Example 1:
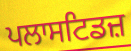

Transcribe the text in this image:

ਪਲਾਸਟਿਡਜ਼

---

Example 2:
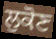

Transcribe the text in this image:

ਲੁਕੋਣ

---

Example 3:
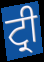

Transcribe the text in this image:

ਟ੍ਰੀ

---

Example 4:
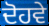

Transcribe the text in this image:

ਦੋਹਵੇ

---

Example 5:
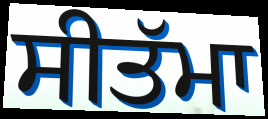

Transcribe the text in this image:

ਸੀਤੱਮਾ